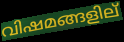
വിഷമങ്ങളില്